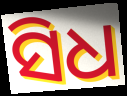
ସିଧ